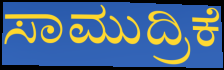
ಸಾಮುದ್ರಿಕೆ